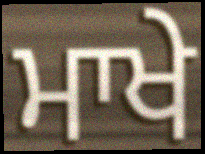
ਮਾਖੇ